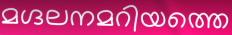
മഗ്ദലനമറിയത്തെ